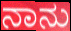
ನಾನು